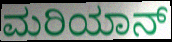
ಮರಿಯಾನ್